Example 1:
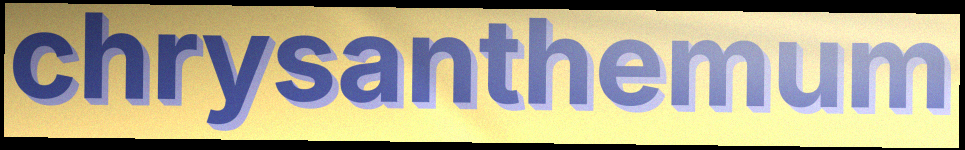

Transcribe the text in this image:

chrysanthemum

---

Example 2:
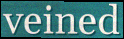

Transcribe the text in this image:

veined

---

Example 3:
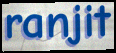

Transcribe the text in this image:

ranjit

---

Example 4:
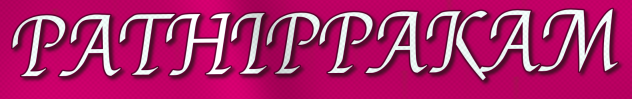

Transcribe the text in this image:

PATHIPPAKAM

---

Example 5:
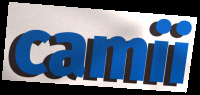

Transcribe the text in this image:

camii